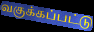
வகுக்கப்பட்டு